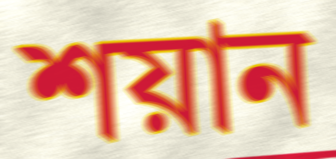
শয়ান